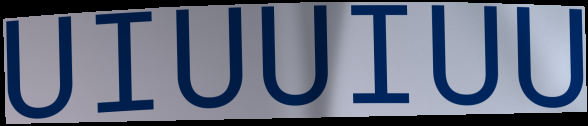
UIUUIUU